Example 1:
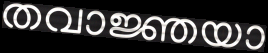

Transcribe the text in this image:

തവാജ്ഞയാ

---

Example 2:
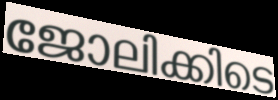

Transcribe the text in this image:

ജോലിക്കിടെ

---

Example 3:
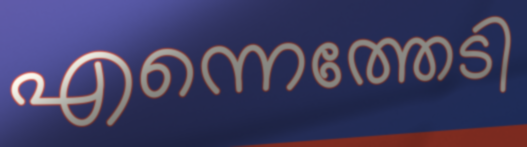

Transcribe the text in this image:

എന്നെത്തേടി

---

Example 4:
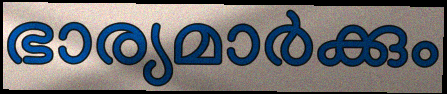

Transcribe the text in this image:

ഭാര്യമാർക്കും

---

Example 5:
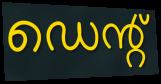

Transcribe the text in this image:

ഡെന്റ്